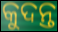
କୁଦନ୍ତ